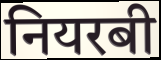
नियरबी